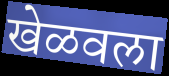
खेळवला